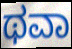
ಥವಾ